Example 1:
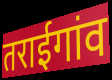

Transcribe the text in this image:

तराईगांव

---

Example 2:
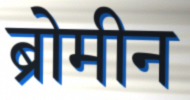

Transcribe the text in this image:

ब्रोमीन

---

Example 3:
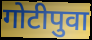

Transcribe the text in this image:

गोटीपुवा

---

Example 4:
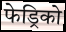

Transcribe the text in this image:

फेड्रिको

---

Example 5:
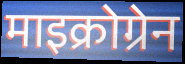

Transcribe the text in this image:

माइक्रोग्रेन